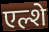
एल्शे